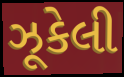
ઝૂકેલી